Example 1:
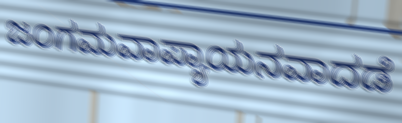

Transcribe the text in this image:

ಜಂಗಮವಾಪ್ಯಾಯನವಾದಡೆ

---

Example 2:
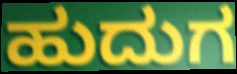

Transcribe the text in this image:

ಹುದುಗ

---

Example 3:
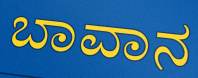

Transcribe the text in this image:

ಬಾವಾನ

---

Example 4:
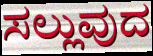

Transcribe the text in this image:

ಸಲ್ಲುವುದ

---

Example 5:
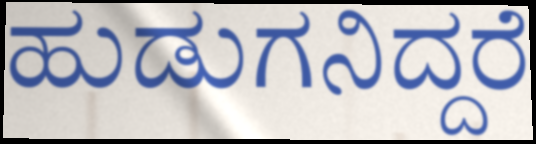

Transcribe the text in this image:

ಹುಡುಗನಿದ್ದರೆ